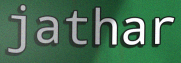
jathar